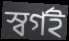
স্বৰ্গই